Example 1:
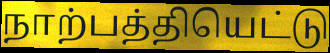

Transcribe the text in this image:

நாற்பத்தியெட்டு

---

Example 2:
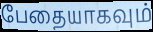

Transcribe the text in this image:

பேதையாகவும்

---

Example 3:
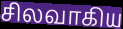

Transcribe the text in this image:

சிலவாகிய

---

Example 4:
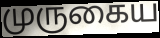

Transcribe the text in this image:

முருகைய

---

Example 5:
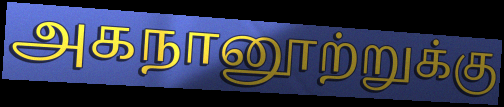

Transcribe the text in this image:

அகநானூற்றுக்கு